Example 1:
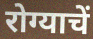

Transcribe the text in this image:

रोग्याचें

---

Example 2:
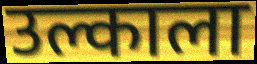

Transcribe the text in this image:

उल्काला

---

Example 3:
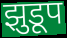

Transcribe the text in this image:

झुडूप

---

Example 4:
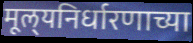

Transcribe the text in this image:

मूल्यनिर्धारणाच्या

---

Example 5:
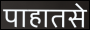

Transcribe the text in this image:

पाहातसे